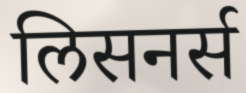
लिसनर्स